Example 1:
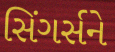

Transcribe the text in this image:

સિંગર્સને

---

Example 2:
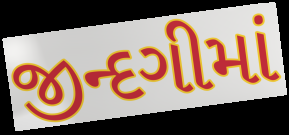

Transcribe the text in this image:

જીન્દગીમાં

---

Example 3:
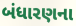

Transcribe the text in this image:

બંધારણના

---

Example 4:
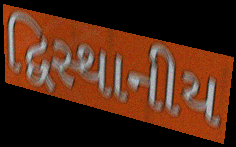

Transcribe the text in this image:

દ્વિસ્થાનીય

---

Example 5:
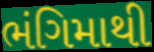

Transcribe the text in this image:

ભંગિમાથી